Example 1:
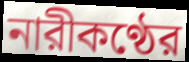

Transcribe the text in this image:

নারীকণ্ঠের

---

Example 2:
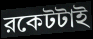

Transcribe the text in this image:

রকেটটাই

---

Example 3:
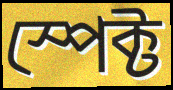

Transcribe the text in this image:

স্পেক্ট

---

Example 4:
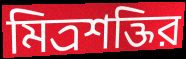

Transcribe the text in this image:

মিত্রশক্তির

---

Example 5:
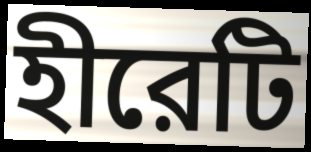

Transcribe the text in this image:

হীরেটি